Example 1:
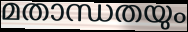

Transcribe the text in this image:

മതാന്ധതയും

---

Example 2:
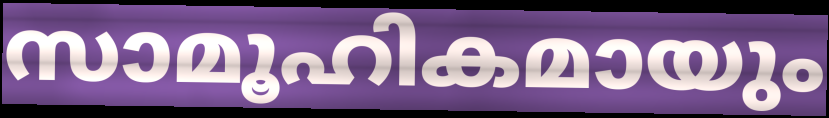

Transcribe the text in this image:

സാമൂഹികമായും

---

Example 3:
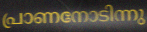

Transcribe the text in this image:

പ്രാണനോടിന്നു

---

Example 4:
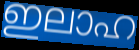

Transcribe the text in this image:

ഇലാഹ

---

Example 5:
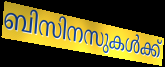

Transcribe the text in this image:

ബിസിനസുകൾക്ക്